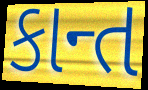
કાન્ત